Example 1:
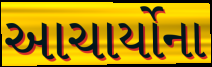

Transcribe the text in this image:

આચાર્યોના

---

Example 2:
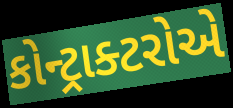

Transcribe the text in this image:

કોન્ટ્રાક્ટરોએ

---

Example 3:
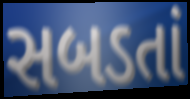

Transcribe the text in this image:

સબડતાં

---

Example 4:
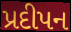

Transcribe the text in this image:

પ્રદીપન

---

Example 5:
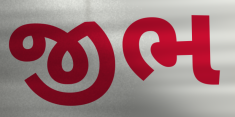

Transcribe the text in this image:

જીભ